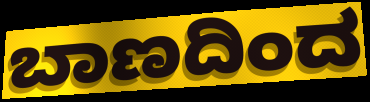
ಬಾಣದಿಂದ